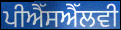
ਪੀਐੱਸਐੱਲਵੀ